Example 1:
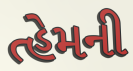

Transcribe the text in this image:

ત્હેમની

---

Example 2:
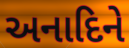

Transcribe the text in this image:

અનાદિને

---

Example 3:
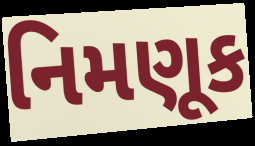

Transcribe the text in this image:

નિમણૂક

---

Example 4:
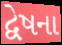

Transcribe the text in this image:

દ્વેષના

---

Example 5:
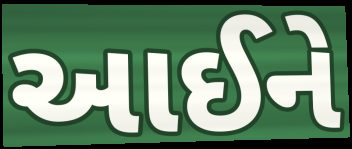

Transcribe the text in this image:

આઈને